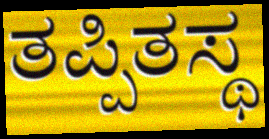
ತಪ್ಪಿತಸ್ಥ